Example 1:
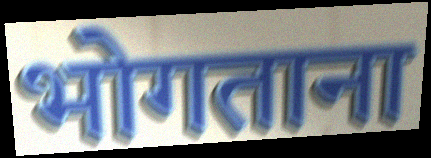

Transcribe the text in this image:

भोगताना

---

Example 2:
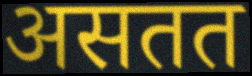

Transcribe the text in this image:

असतत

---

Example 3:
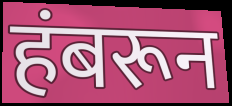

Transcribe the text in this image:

हंबरून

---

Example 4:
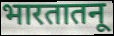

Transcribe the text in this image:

भारतातनू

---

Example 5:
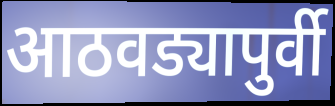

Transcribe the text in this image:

आठवड्यापुर्वी